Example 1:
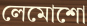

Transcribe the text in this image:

লেমোশো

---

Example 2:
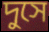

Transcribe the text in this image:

দুসে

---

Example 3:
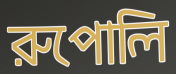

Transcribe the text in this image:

রুপোলি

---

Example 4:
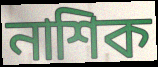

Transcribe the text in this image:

নাশিক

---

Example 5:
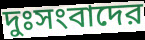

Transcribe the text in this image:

দুঃসংবাদের